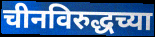
चीनविरुद्धच्या